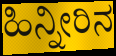
ಹಿನ್ನೀರಿನ